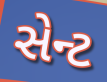
સેન્ટ